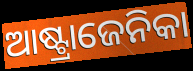
ଆଷ୍ଟ୍ରାଜେନିକା